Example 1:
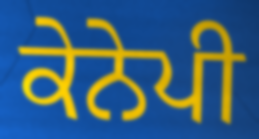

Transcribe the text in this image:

ਕੇਨੇਪੀ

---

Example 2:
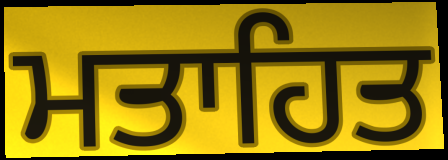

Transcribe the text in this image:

ਮਤਾਹਿਤ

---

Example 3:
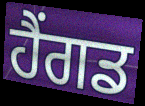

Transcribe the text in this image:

ਹੈਂਗਡ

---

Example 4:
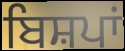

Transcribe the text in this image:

ਬਿਸ਼ਪਾਂ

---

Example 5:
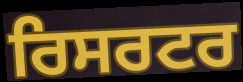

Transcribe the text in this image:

ਰਿਸਰਟਰ